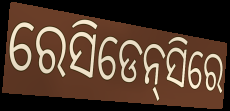
ରେସିଡେନ୍‌ସିରେ